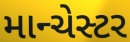
માન્ચેસ્ટર